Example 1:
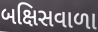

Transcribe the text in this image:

બક્ષિસવાળા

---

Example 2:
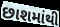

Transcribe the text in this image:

છાશમાંથી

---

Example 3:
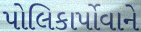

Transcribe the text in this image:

પોલિકાર્પોવાને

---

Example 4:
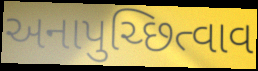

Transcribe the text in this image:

અનાપુચ્છિત્વાવ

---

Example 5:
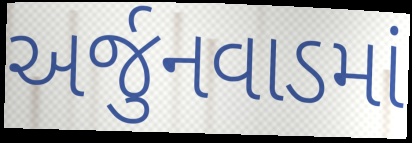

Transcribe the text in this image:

અર્જુનવાડમાં